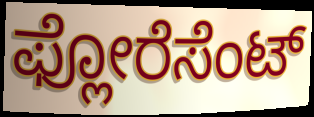
ಫ್ಲೋರೆಸೆಂಟ್